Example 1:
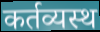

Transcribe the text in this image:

कर्तव्यस्थ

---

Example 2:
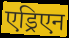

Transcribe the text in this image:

एड्रिएन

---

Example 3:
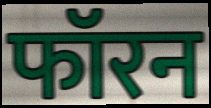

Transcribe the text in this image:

फॉरन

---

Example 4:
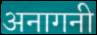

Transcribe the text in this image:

अनागनी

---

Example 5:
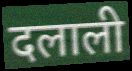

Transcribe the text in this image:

दलाली